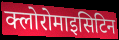
क्लोरोमाइसिटिन